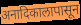
अनादिकालापासून